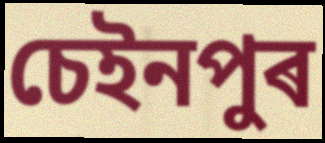
চেইনপুৰ